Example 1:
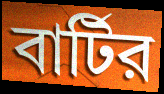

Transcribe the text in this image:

বার্টির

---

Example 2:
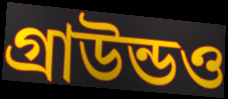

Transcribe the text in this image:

গ্রাউন্ডও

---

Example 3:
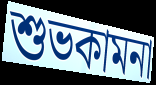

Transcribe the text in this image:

শুভকামনা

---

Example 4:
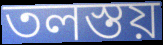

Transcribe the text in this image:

তলস্তয়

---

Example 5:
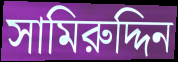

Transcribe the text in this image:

সামিরুদ্দিন